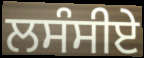
ਲਸੰਸੀਏ